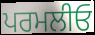
ਪਰਮਲੀਓ